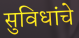
सुविधांचे